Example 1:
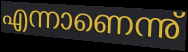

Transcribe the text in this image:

എന്നാണെന്നു്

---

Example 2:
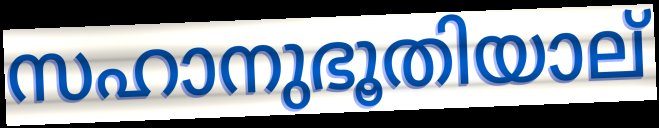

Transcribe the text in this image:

സഹാനുഭൂതിയാല്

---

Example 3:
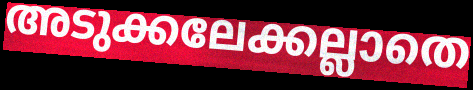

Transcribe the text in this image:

അടുക്കലേക്കല്ലാതെ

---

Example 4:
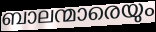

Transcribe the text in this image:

ബാലന്മാരെയും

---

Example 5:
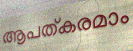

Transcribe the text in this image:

ആപത്കരമാം